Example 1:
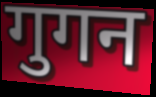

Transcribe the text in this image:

गुगन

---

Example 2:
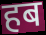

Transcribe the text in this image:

हब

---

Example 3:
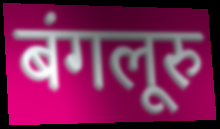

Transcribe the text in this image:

बंगलूरु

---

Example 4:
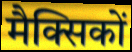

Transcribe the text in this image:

मैक्सिकों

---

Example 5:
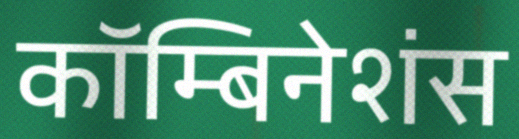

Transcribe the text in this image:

कॉम्बिनेशंस